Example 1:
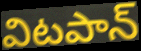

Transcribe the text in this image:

విటపాన్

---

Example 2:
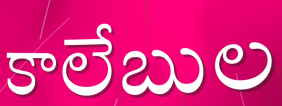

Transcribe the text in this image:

కాలేబుల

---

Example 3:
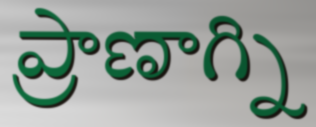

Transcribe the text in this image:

ప్రాణాగ్ని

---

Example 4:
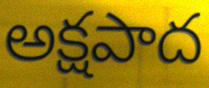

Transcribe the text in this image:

అక్షపాద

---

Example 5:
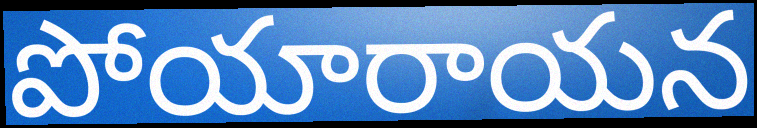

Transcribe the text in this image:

పోయారాయన